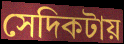
সেদিকটায়